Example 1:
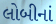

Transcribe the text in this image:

લોબીનાં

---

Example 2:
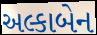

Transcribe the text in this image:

અલ્કાબેન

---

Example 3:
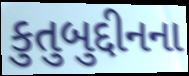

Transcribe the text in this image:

કુતુબુદ્દીનના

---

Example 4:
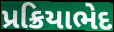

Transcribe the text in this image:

પ્રક્રિયાભેદ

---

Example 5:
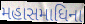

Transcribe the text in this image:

મહાસમાધિના